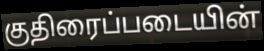
குதிரைப்படையின்